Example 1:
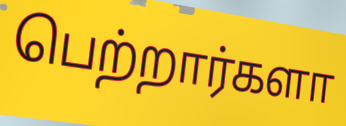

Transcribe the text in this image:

பெற்றார்களா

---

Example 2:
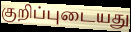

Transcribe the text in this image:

குறிப்புடையது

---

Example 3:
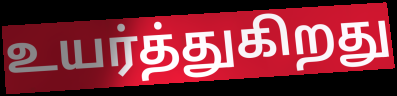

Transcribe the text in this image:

உயர்த்துகிறது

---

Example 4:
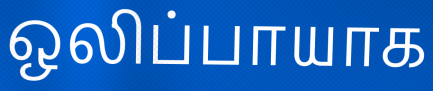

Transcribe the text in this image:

ஒலிப்பாயாக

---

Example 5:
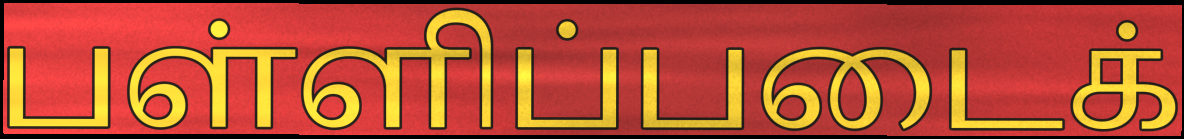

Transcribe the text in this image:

பள்ளிப்படைக்